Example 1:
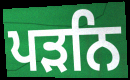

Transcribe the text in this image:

ਪੜਨਿ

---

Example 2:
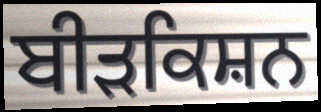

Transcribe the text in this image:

ਬੀੜਕਿਸ਼ਨ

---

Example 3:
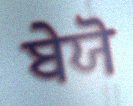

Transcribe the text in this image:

ਬੇਯੋ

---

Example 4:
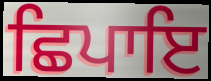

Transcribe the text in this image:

ਛਿਪਾਇ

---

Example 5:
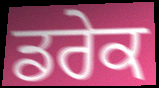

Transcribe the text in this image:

ਡਰੇਕ